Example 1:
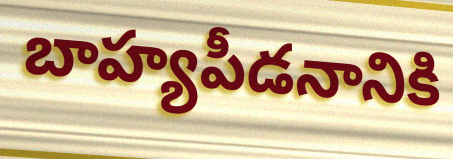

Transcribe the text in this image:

బాహ్యపీడనానికి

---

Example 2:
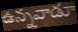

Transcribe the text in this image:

ఉన్నవాడూ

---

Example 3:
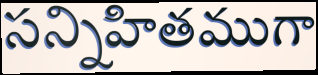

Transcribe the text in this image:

సన్నిహితముగా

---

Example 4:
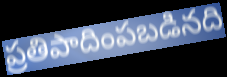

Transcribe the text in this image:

ప్రతిపాదింపబడినది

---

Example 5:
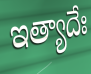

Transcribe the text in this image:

ఇత్యాదేః